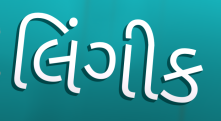
લિંગીક